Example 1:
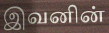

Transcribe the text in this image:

இவனின்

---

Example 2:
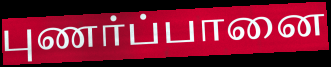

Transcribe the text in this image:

புணர்ப்பானை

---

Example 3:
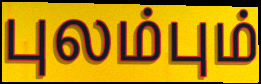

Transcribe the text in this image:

புலம்பும்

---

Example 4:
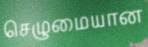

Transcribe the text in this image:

செழுமையான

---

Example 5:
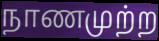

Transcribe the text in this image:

நாணமுற்ற